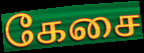
கேசை